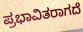
ಪ್ರಭಾವಿತರಾಗದೆ